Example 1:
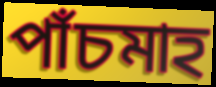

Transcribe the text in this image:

পাঁচমাহ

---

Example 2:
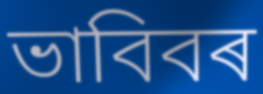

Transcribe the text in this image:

ভাবিবৰ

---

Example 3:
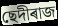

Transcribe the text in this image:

ছেদীৰাজ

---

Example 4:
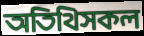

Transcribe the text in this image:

অতিথিসকল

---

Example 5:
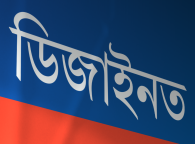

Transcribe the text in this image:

ডিজাইনত